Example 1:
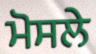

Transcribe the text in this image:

ਮੋਸਲੇ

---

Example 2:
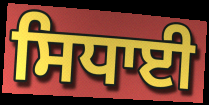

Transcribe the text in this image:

ਸਿਧਾਈ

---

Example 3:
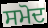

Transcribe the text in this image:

ਸਮੋਦ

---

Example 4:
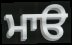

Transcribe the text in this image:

ਮਾੳ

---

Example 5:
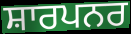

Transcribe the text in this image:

ਸ਼ਾਰਪਨਰ